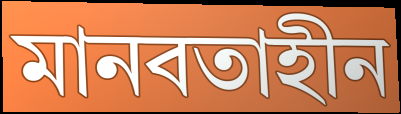
মানবতাহীন